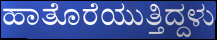
ಹಾತೊರೆಯುತ್ತಿದ್ದಳು